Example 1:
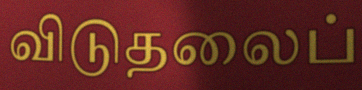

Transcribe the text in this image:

விடுதலைப்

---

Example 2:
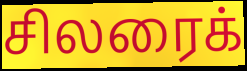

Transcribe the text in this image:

சிலரைக்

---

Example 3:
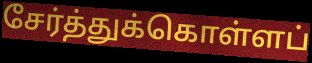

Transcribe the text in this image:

சேர்த்துக்கொள்ளப்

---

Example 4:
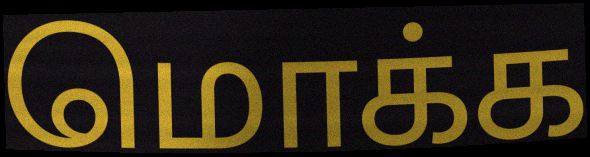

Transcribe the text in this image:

மொக்க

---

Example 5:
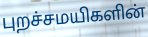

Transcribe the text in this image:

புறச்சமயிகளின்